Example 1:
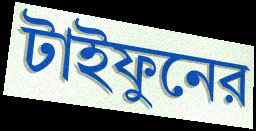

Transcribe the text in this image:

টাইফুনের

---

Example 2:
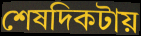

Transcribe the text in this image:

শেষদিকটায়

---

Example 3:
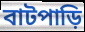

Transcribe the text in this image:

বাটপাড়ি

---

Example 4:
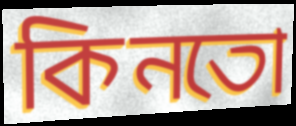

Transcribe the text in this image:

কিনতো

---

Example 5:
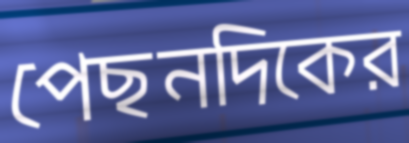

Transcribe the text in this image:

পেছনদিকের